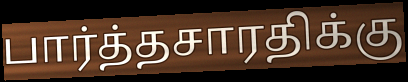
பார்த்தசாரதிக்கு